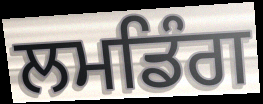
ਲਮਡਿੰਗ